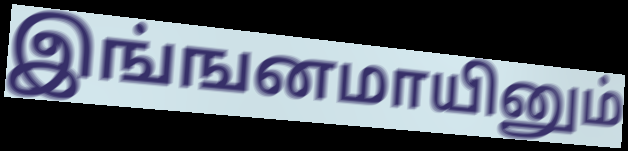
இங்ஙனமாயினும்